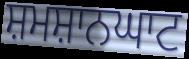
ਸ਼ਮਸ਼ਾਨਘਾਟ